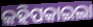
କହିପକାଇଲା